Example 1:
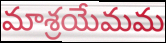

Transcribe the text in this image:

మాశ్రయేమమ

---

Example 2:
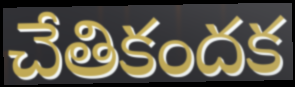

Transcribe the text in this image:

చేతికందక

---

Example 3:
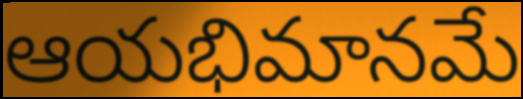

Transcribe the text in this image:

ఆయభిమానమే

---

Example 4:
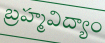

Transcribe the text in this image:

బ్రహ్మవిద్యాం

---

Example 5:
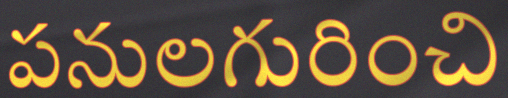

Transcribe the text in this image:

పనులగురించి